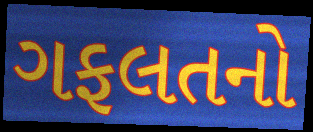
ગફલતનો